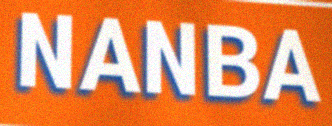
NANBA